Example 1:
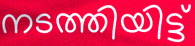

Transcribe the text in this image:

നടത്തിയിട്ട്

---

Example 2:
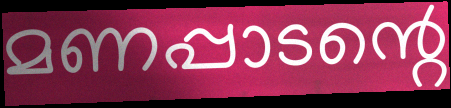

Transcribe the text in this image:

മണപ്പാടന്റെ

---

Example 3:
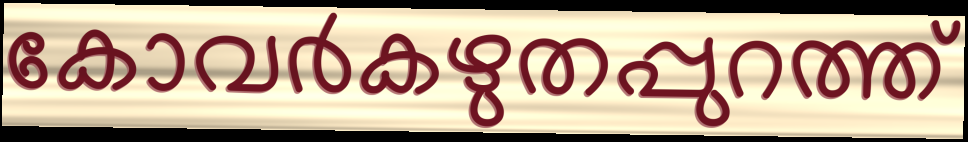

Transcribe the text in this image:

കോവർകഴുതപ്പുറത്ത്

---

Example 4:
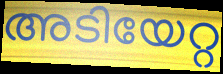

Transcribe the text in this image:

അടിയേറ്റ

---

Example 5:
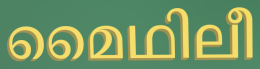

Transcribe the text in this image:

മൈഥിലീ